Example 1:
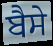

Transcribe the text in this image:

ਬੈਸੇ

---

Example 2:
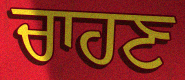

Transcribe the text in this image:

ਚਾਹਣ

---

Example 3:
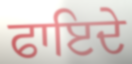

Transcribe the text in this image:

ਫਾਇਦੇ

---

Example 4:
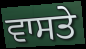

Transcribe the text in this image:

ਵਾਸਤੇ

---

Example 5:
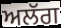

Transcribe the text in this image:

ਅਲੱਗ